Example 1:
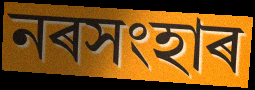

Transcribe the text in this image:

নৰসংহাৰ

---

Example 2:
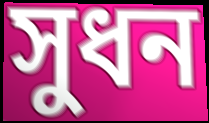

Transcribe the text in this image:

সুধন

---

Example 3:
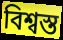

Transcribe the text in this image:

বিশ্বস্ত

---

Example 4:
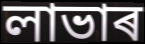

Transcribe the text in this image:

লাভাৰ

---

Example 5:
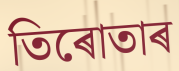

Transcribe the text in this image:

তিৰোতাৰ